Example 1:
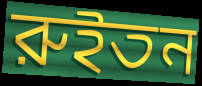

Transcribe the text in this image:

রুইতন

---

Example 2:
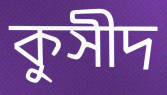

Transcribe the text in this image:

কুসীদ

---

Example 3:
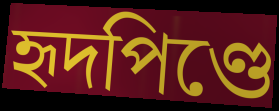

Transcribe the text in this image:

হৃদপিণ্ডে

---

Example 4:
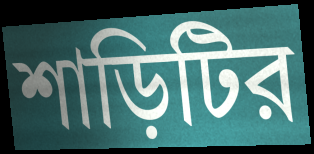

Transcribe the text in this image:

শাড়িটির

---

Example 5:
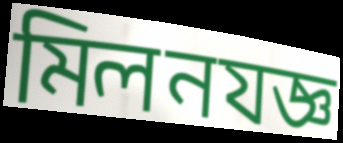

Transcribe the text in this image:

মিলনযজ্ঞ